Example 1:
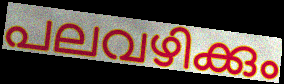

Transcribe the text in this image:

പലവഴിക്കും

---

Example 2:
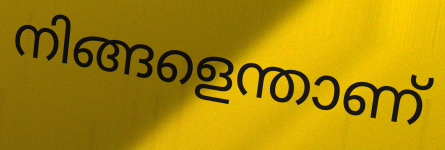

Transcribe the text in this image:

നിങ്ങളെന്താണ്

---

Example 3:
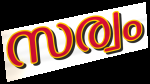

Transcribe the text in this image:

സര്വം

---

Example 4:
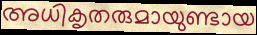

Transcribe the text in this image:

അധികൃതരുമായുണ്ടായ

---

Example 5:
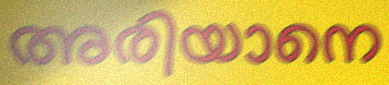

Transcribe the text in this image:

അരിയാനെ